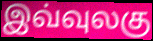
இவ்வுலகு